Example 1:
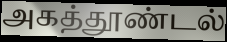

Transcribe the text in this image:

அகத்தூண்டல்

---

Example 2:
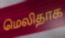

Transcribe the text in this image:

மெலிதாக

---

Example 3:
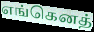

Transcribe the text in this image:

எங்கெனத்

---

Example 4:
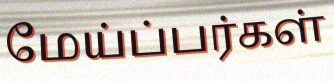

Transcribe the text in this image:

மேய்ப்பர்கள்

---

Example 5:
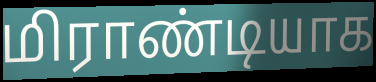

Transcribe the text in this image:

மிராண்டியாக